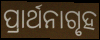
ପ୍ରାର୍ଥନାଗୃହ